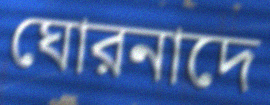
ঘোরনাদে